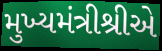
મુખ્યમંત્રીશ્રીએ